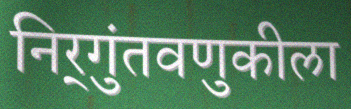
निर्गुंतवणुकीला